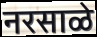
नरसाळे